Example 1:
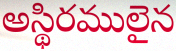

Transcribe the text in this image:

అస్థిరములైన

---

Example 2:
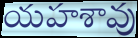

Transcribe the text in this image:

యహశావు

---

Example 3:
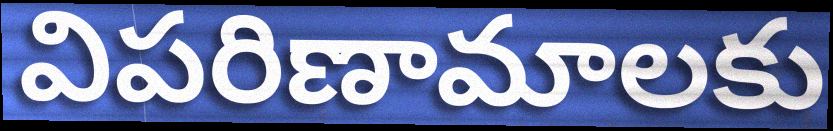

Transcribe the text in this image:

విపరిణామాలకు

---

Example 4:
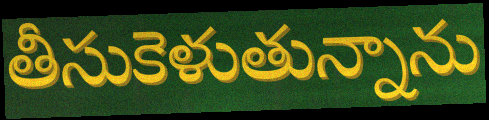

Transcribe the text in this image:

తీసుకెళుతున్నాను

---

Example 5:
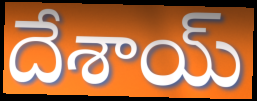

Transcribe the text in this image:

దేశాయ్